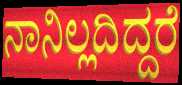
ನಾನಿಲ್ಲದಿದ್ದರೆ